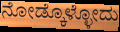
ನೋಡ್ಕೊಳ್ಳೋದು